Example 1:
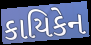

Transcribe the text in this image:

કાયિકેન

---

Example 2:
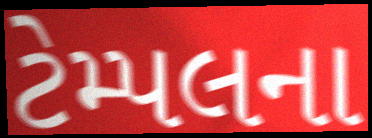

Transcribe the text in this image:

ટેમ્પલના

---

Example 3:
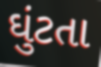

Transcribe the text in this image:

ઘુંટતા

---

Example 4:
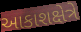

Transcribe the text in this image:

આકાશક્ષેત્રે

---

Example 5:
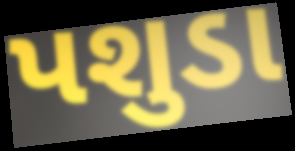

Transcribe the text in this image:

પશુડા